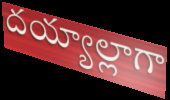
దయ్యాల్లాగా